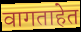
वागताहेत